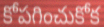
కోపగించుకోక